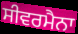
ਸੀਵਰਮੈਨਾ